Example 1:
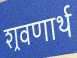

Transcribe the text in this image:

श्रवणार्थ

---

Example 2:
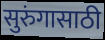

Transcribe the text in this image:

सुरुंगासाठी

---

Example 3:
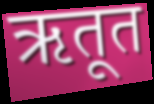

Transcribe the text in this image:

ऋतूत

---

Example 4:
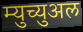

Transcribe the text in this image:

म्युच्युअल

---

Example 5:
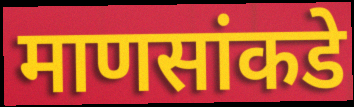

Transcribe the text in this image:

माणसांकडे